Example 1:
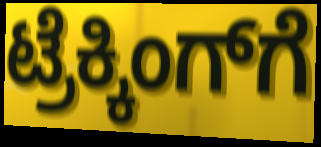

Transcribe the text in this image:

ಟ್ರೆಕ್ಕಿಂಗ್‌ಗೆ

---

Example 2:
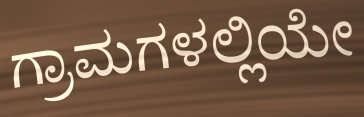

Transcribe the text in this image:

ಗ್ರಾಮಗಳಲ್ಲಿಯೇ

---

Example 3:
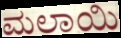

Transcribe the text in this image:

ಮಲಾಯಿ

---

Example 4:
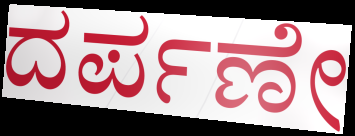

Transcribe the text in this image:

ದರ್ಪಣೇ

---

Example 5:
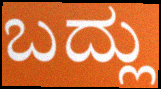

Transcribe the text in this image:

ಬದ್ಲು